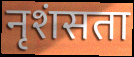
नृशंसता